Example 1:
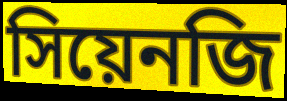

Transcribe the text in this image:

সিয়েনজি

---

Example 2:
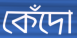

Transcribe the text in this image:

কেঁদো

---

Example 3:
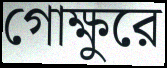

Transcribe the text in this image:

গোক্ষুরে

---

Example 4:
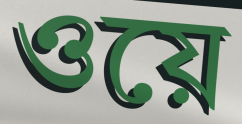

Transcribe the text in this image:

ওয়ে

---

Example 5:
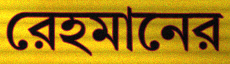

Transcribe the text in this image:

রেহমানের